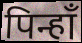
पिन्हाँ